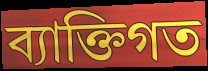
ব্যাক্তিগত